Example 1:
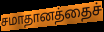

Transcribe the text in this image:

சமாதானத்தைச்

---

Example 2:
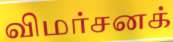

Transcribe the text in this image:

விமர்சனக்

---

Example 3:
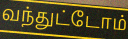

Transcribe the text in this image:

வந்துட்டோம்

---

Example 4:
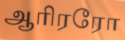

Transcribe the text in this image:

ஆரிரரோ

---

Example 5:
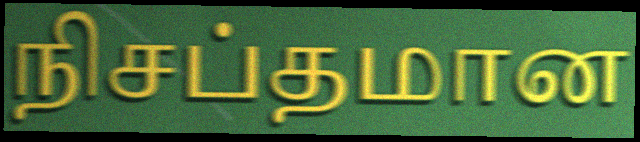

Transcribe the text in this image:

நிசப்தமான